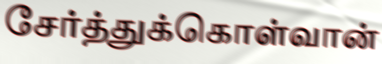
சேர்த்துக்கொள்வான்